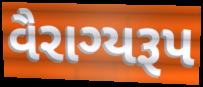
વૈરાગ્યરૂપ